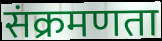
संक्रमणता